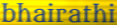
bhairathi